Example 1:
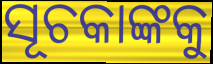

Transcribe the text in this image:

ସୂଚକାଙ୍କକୁ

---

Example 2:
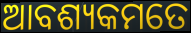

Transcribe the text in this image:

ଆବଶ୍ୟକମତେ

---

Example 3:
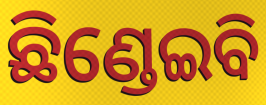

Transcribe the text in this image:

ଛିଣ୍ଡେଇବି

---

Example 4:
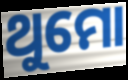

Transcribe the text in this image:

ଥୁମୋ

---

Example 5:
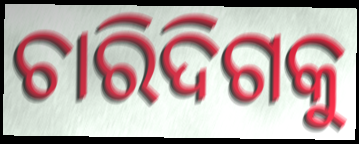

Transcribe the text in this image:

ଚାରିଦିଗକୁ